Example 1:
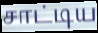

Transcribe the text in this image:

சாட்டிய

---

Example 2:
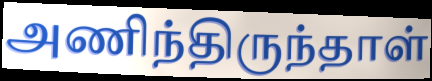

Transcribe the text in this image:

அணிந்திருந்தாள்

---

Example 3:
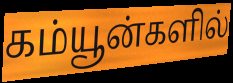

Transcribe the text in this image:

கம்யூன்களில்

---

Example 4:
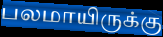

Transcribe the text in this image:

பலமாயிருக்கு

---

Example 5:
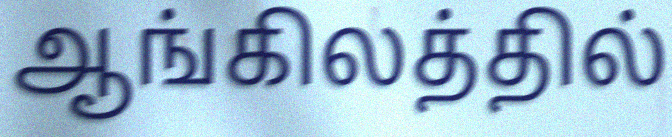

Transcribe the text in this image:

ஆங்கிலத்தில்